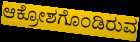
ಆಕ್ರೋಶಗೊಂಡಿರುವ